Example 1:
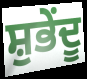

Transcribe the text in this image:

ਸ਼ੁਭੇਂਦੂ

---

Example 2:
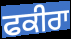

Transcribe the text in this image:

ਫਕੀਰਾ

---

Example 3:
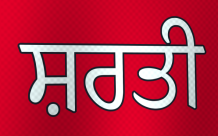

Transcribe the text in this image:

ਸ਼ਰਤੀ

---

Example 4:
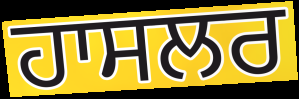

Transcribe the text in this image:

ਹਾਸਲਰ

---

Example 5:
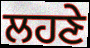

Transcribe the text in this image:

ਲਹਣੇ